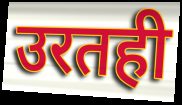
उरतही